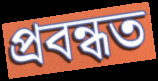
প্ৰবন্ধত